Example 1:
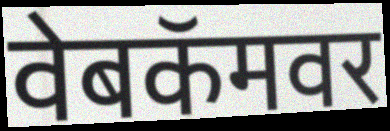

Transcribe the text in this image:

वेबकॅमवर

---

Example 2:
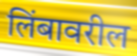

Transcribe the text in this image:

लिंबावरील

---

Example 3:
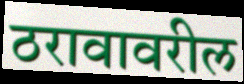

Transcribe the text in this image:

ठरावावरील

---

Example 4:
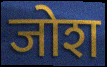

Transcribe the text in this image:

जोश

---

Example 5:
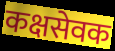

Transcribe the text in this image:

कक्षसेवक